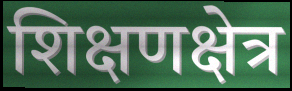
शिक्षणक्षेत्र